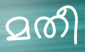
മതീ